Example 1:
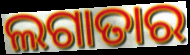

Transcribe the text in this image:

ଲଗାତାର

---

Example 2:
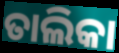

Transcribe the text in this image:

ତାଲିକା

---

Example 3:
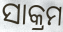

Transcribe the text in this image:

ସାକ୍ରମ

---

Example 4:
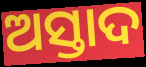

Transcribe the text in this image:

ଅସ୍ତାଦ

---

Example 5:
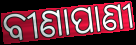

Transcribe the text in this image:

ବୀଣାପାଣୀ